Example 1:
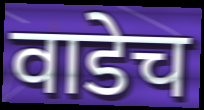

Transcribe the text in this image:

वाडेच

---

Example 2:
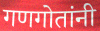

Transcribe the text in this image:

गणगोतांनी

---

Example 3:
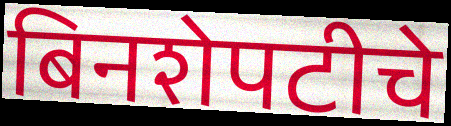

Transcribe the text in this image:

बिनशेपटीचे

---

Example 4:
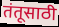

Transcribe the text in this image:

तंतूसाठी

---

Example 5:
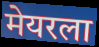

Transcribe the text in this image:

मेयरला